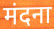
मंदना